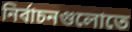
নির্বাচনগুলোতে